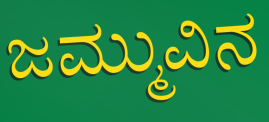
ಜಮ್ಮುವಿನ